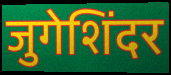
जुगेशिंदर